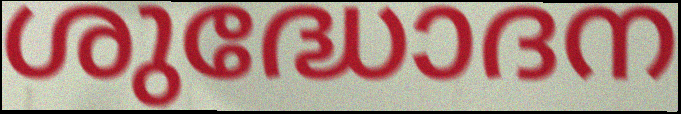
ശുദ്ധോദന